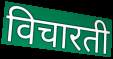
विचारती